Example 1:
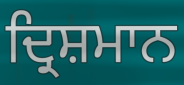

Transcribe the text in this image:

ਦ੍ਰਿਸ਼ਮਾਨ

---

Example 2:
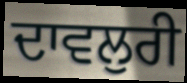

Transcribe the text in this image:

ਦਾਵਲੁਰੀ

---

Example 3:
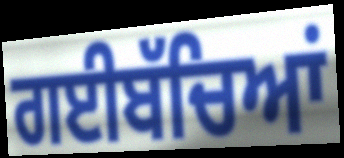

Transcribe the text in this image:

ਗਈਬੱਚਿਆਂ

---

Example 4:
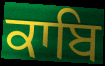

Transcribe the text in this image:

ਕਾਬਿ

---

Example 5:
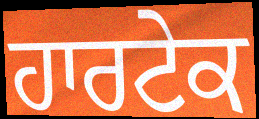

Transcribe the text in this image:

ਹਾਰਟੇਕ